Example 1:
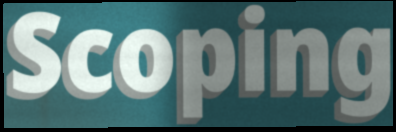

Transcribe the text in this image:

Scoping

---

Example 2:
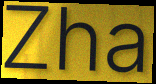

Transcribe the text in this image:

Zha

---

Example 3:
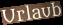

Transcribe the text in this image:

Urlaub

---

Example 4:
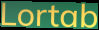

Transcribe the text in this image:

Lortab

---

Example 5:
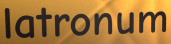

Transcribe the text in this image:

latronum